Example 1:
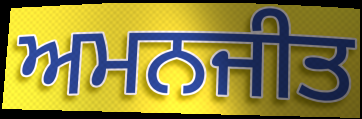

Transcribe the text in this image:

ਅਮਨਜੀਤ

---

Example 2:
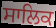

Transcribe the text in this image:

ਸਾਲਿਕ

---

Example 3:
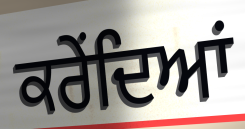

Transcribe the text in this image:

ਕਰੇਂਦਿਆਂ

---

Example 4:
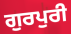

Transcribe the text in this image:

ਗੁਰਪੁਰੀ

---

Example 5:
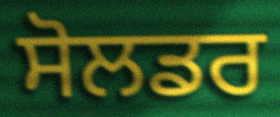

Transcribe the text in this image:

ਸੋਲਡਰ